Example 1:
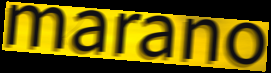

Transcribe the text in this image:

marano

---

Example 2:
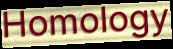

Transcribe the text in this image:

Homology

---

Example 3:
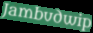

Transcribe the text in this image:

Jambudwip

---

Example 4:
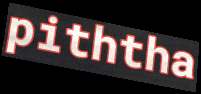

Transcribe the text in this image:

piththa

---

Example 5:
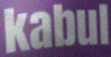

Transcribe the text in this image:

kabul